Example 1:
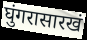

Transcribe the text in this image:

घुंगरासारखं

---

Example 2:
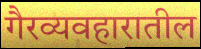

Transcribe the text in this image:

गैरव्यवहारातील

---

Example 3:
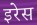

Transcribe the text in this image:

इरेस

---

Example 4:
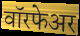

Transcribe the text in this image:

वॉरफेअर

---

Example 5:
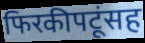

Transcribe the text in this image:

फिरकीपटूंसह